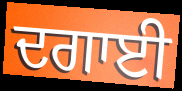
ਦਗਾਈ